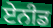
ਏਨੀਡ